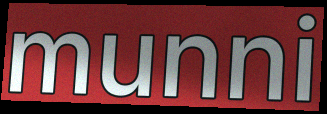
munni